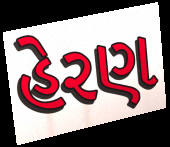
હેરણ